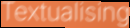
Textualising